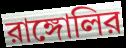
রাঙ্গোলির